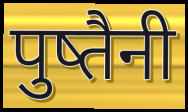
पुष्तैनी